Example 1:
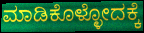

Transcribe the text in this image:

ಮಾಡಿಕೊಳ್ಳೋದಕ್ಕೆ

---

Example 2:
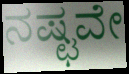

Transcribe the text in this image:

ನಷ್ಟವೇ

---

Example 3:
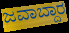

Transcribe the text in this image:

ಜವಾಬ್ದಾರ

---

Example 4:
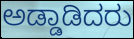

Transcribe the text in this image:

ಅಡ್ಡಾಡಿದರು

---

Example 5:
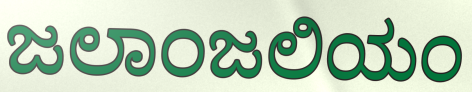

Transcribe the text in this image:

ಜಲಾಂಜಲಿಯಂ